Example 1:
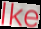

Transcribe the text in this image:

Ike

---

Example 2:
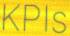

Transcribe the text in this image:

KPIs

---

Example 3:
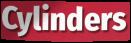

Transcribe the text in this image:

Cylinders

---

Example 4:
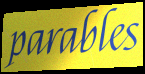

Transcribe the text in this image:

parables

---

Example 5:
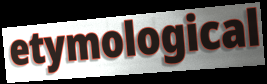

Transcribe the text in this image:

etymological